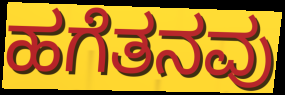
ಹಗೆತನವು